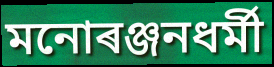
মনোৰঞ্জনধৰ্মী